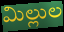
మిల్లుల